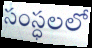
సంస్ధలలో